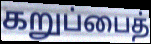
கறுப்பைத்